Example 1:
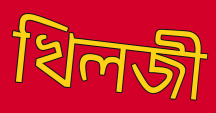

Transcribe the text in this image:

খিলজী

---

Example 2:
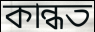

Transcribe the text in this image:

কান্ধত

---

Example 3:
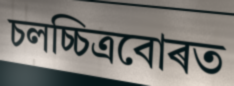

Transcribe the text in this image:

চলচ্চিত্ৰবোৰত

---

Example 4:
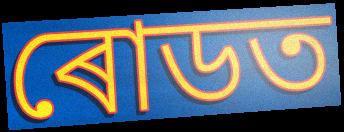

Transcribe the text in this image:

ৰোডত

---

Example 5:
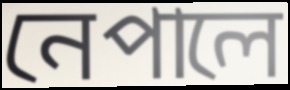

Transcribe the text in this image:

নেপালে